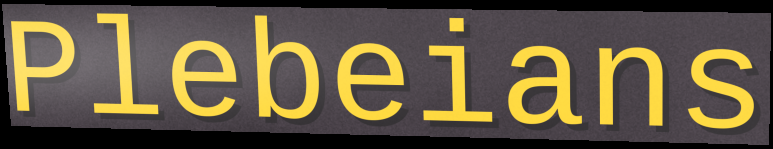
Plebeians